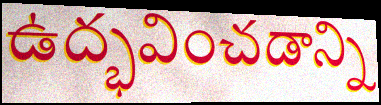
ఉద్భవించడాన్ని